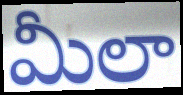
మీలా